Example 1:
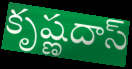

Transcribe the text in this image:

కృష్ణదాస్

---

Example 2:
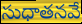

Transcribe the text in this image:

సుధాతనవే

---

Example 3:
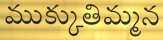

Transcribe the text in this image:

ముక్కుతిమ్మన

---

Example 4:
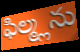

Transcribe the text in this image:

ఫిల్మ్లను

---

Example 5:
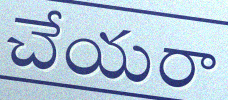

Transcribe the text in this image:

చేయరా